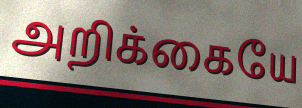
அறிக்கையே